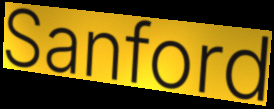
Sanford